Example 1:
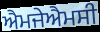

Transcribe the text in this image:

ਐਮਜੇਐਮਸੀ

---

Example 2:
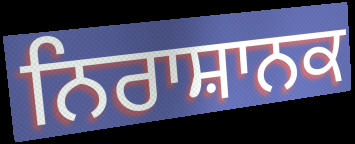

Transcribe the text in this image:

ਨਿਰਾਸ਼ਾਨਕ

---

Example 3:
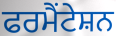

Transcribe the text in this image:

ਫਰਮੈਂਟੇਸ਼ਨ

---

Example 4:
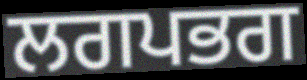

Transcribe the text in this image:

ਲਗਪਭਗ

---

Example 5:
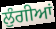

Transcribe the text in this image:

ਲੁੰਗੀਆਂ